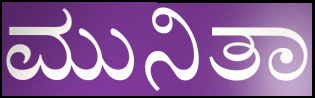
ಮುನಿತಾ